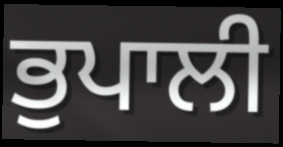
ਭੁਪਾਲੀ